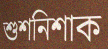
শুশনিশাক